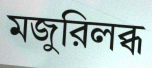
মজুরিলব্ধ